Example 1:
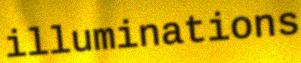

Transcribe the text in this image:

illuminations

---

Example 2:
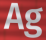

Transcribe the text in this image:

Ag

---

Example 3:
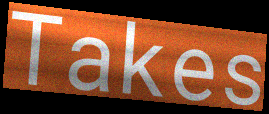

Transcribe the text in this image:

Takes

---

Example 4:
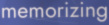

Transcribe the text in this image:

memorizing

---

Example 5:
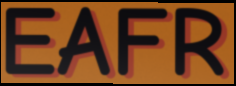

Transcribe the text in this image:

EAFR